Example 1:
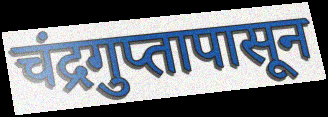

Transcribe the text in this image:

चंद्रगुप्तापासून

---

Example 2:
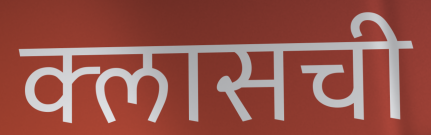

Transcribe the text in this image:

क्‍लासची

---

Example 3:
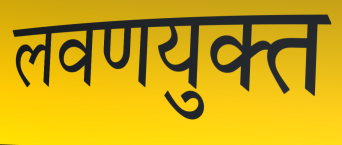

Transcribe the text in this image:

लवणयुक्त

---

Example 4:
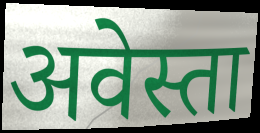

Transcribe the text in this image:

अवेस्ता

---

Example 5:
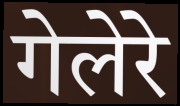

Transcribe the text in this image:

गेलेरे